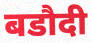
बडौदी